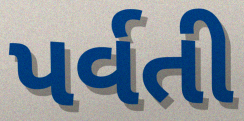
પર્વતી